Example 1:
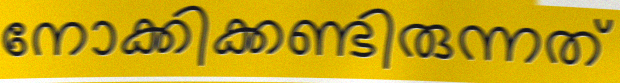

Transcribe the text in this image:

നോക്കിക്കണ്ടിരുന്നത്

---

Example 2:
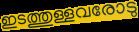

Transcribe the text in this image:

ഇടത്തുള്ളവരോടു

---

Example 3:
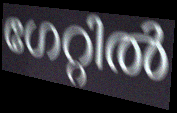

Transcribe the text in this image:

ഗേറ്റിൽ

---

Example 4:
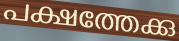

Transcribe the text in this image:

പക്ഷത്തേക്കു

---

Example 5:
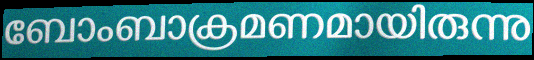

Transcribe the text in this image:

ബോംബാക്രമണമായിരുന്നു